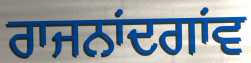
ਰਾਜਨਾਂਦਗਾਂਵ